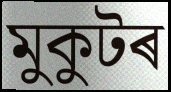
মুকুটৰ